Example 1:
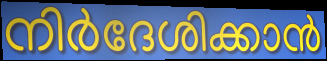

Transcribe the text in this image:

നിർദേശിക്കാൻ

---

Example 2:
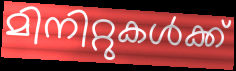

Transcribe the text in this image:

മിനിറ്റുകൾക്ക്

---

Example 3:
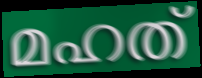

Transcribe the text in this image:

മഹത്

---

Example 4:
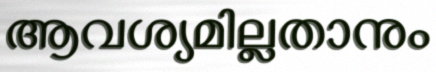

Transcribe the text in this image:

ആവശ്യമില്ലതാനും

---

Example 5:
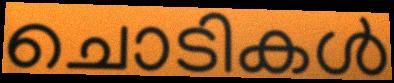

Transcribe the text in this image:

ചൊടികൾ